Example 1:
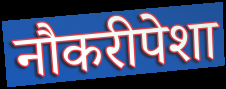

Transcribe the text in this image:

नौकरीपेशा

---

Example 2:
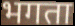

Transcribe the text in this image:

भगता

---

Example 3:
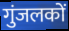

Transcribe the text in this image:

गुंजलकों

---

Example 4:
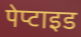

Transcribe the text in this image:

पेप्टाइड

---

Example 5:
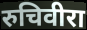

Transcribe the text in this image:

रुचिवीरा